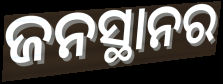
ଜନସ୍ଥାନର